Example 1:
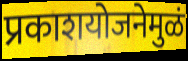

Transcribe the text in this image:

प्रकाशयोजनेमुळं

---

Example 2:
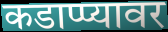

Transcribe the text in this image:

कडाप्प्यावर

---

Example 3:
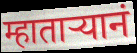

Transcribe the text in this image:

म्हाताऱ्यानं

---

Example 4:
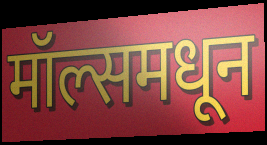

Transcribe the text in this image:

मॉल्समधून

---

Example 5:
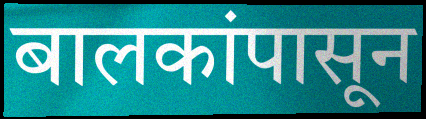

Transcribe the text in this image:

बालकांपासून